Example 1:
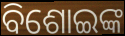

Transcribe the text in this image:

ବିଶୋଇଙ୍କ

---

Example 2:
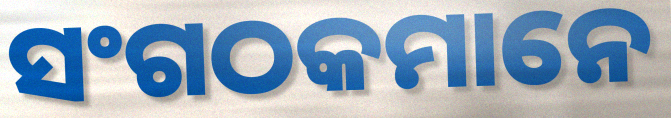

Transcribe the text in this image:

ସଂଗଠକମାନେ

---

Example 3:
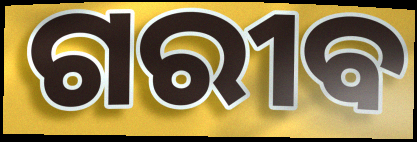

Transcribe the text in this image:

ଗରୀବ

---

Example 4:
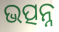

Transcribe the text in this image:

ଭତ୍ପନ୍ନ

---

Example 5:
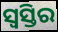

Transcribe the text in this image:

ସ୍ୱସ୍ତିର